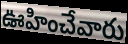
ఊహించేవారు